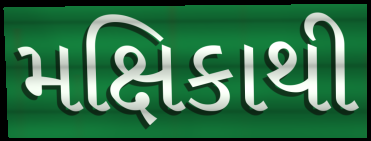
મક્ષિકાથી